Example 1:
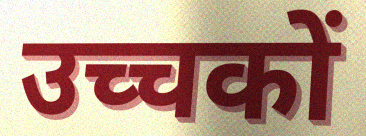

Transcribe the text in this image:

उच्चकों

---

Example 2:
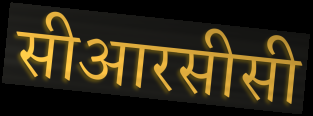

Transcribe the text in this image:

सीआरसीसी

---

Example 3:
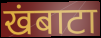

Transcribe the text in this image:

खंबाटा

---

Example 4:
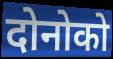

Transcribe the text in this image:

दोनोको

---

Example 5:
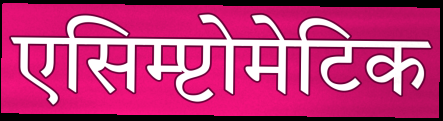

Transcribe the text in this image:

एसिम्प्टोमेटिक